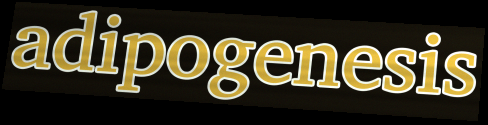
adipogenesis